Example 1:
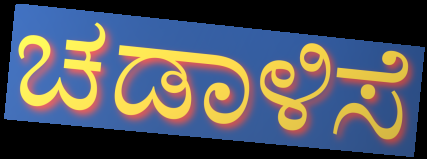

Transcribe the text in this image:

ಚಡಾಳಿಸೆ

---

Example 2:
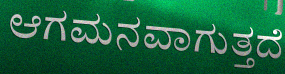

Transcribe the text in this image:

ಆಗಮನವಾಗುತ್ತದೆ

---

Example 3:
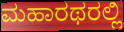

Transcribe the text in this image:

ಮಹಾರಥರಲ್ಲಿ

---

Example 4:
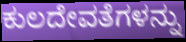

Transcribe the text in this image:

ಕುಲದೇವತೆಗಳನ್ನು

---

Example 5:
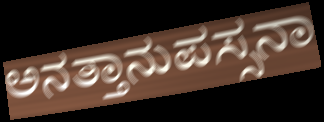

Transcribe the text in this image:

ಅನತ್ತಾನುಪಸ್ಸನಾ